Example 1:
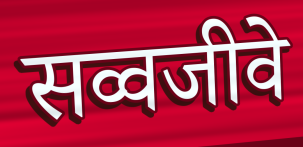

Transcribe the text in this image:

सव्वजीवे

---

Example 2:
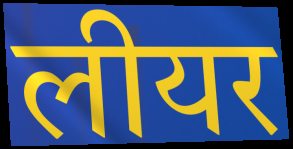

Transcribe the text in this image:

लीयर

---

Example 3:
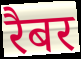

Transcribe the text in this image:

रैबर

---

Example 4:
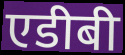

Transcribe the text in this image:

एडीबी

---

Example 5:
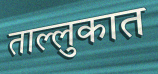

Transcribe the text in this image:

ताल्लुकात